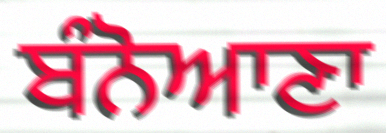
ਬੰਨੋਆਣਾ